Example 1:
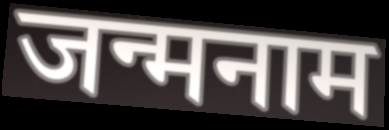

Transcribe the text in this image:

जन्मनाम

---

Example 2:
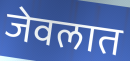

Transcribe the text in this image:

जेवलात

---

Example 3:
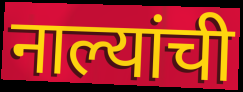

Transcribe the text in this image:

नाल्यांची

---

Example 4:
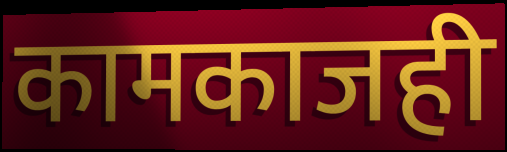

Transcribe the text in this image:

कामकाजही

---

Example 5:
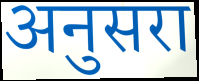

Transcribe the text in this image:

अनुसरा